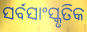
ସର୍ବସାଂସ୍କୃତିକ